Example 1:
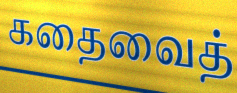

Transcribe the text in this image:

கதைவைத்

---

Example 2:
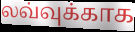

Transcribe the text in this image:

லவ்வுக்காக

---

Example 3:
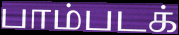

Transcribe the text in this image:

பாம்படக்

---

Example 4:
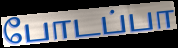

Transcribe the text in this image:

போடப்பா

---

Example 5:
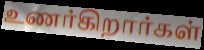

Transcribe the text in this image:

உணர்கிறார்கள்